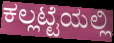
ಕಲ್ಲಟ್ಟೆಯಲ್ಲಿ